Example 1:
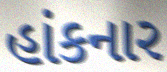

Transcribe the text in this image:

હાંકનાર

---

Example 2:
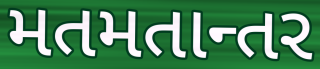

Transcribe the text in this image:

મતમતાન્તર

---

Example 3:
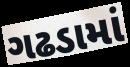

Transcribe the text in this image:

ગઢડામાં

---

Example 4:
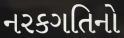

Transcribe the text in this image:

નરકગતિનો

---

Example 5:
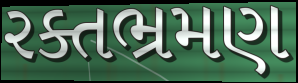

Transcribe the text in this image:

રક્તભ્રમણ